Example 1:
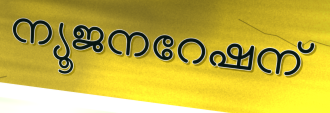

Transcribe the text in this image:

ന്യൂജനറേഷന്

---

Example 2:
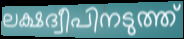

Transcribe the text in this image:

ലക്ഷദ്വീപിനടുത്ത്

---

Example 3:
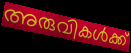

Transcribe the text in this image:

അരുവികൾക്ക്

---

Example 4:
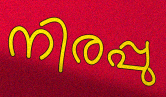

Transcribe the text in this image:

നിരപ്പു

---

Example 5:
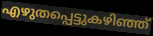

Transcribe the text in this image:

എഴുതപ്പെട്ടുകഴിഞ്ഞ്